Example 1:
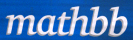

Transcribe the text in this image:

mathbb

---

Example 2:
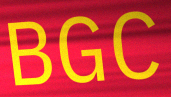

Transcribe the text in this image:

BGC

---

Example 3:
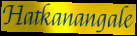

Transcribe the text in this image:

Hatkanangale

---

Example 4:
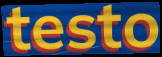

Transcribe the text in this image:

testo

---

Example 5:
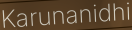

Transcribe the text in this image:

Karunanidhi